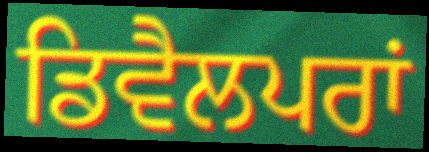
ਡਿਵੈਲਪਰਾਂ